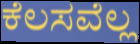
ಕೆಲಸವೆಲ್ಲ